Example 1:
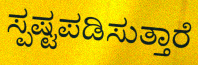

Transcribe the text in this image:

ಸ್ಪಷ್ಟಪಡಿಸುತ್ತಾರೆ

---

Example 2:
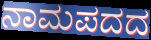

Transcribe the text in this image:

ನಾಮಪದದ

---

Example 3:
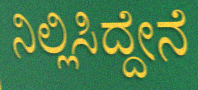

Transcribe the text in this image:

ನಿಲ್ಲಿಸಿದ್ದೇನೆ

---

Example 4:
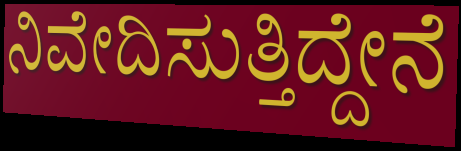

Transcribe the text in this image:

ನಿವೇದಿಸುತ್ತಿದ್ದೇನೆ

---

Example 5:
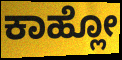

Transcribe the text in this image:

ಕಾಹ್ಲೋ